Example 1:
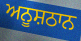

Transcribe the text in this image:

ਅਨੂਸ਼ਠਾਨ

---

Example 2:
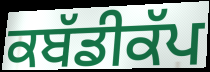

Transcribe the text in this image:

ਕਬੱਡੀਕੱਪ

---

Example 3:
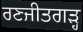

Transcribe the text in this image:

ਰਣਜੀਤਗੜ੍ਹ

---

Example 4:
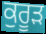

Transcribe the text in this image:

ਕੁਰੂੜ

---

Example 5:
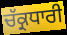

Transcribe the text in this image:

ਚੱਕ੍ਰਧਾਰੀ